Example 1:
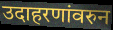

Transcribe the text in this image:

उदाहरणांवरुन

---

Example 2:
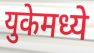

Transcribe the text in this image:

युकेमध्ये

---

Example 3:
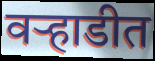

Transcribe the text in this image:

वऱ्हाडीत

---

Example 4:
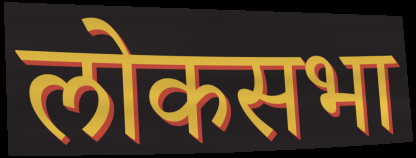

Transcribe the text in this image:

लोकसभा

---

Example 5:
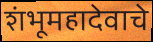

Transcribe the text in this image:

शंभूमहादेवाचे